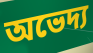
অভেদ্য